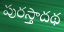
పురస్తాదథ